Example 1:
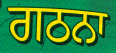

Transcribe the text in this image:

ਗਠਨਾ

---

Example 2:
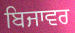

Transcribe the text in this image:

ਬਿਜਾਵਰ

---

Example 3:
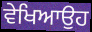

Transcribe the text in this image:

ਵੇਖਿਆਉਹ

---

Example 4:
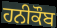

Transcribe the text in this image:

ਹਨੀਕੌਬ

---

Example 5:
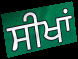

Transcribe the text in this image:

ਸੀਖਾਂ